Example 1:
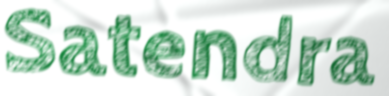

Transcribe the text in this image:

Satendra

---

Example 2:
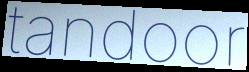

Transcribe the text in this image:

tandoor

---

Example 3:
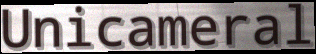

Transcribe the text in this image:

Unicameral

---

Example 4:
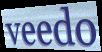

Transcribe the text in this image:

veedo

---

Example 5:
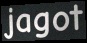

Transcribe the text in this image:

jagot